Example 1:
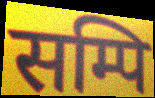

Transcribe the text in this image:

सम्पि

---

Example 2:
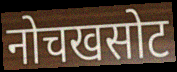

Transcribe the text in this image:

नोचखसोट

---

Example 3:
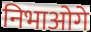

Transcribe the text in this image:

निभाओगे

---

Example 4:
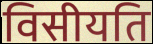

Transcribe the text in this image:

विसीयति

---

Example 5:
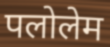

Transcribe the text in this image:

पलोलेम